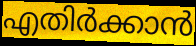
എതിർക്കാൻ